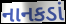
નાનકડાં